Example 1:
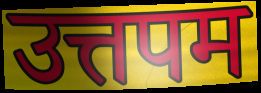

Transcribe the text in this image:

उत्तपम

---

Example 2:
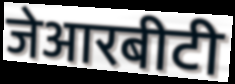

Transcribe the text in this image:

जेआरबीटी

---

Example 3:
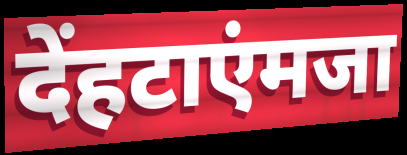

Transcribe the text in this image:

देंहटाएंमजा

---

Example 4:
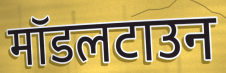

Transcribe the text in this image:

मॉडलटाउन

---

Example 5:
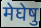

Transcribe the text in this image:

मेघेषु